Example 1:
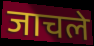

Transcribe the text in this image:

जाचले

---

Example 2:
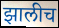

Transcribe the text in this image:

झालीच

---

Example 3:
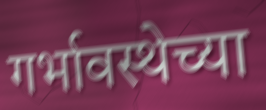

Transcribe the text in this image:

गर्भावस्थेच्या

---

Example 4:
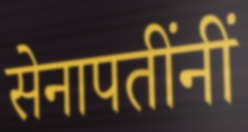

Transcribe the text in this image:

सेनापतींनीं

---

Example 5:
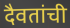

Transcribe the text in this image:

दैवतांची